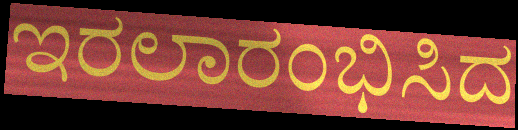
ಇರಲಾರಂಭಿಸಿದ